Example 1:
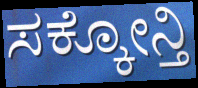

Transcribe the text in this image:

ಸಕ್ಕೋನ್ತಿ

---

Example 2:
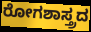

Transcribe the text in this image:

ರೋಗಶಾಸ್ತ್ರದ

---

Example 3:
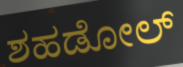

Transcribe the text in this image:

ಶಹಡೋಲ್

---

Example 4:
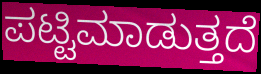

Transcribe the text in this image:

ಪಟ್ಟಿಮಾಡುತ್ತದೆ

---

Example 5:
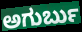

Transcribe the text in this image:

ಅಗುರ್ಬು